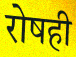
रोषही